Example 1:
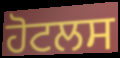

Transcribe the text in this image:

ਹੋਟਲਸ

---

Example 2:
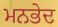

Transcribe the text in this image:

ਮਨਭੇਦ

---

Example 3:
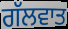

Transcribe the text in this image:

ਗੱਲਵਾਤ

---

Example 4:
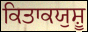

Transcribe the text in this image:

ਕਿਤਾਕਯੁਸ਼ੂ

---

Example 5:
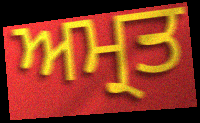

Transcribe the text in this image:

ਅਮ੍ਰਤ